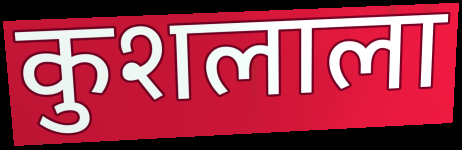
कुशलाला